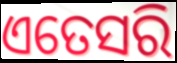
ଏତେସରି